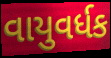
વાયુવર્ધક